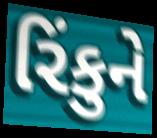
રિંકુને